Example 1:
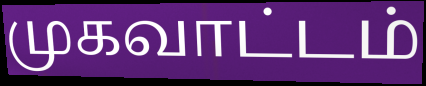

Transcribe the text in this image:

முகவாட்டம்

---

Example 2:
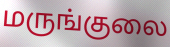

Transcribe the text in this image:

மருங்குலை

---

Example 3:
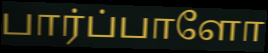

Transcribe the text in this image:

பார்ப்பாளோ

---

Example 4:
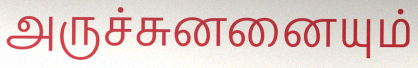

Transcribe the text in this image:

அருச்சுனனையும்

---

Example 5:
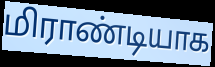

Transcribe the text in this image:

மிராண்டியாக